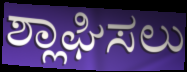
ಶ್ಲಾಘಿಸಲು